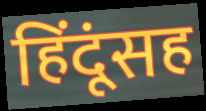
हिंदूंसह